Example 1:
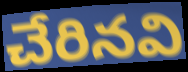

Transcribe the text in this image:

చేరినవి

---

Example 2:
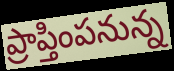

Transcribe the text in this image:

ప్రాప్తింపనున్న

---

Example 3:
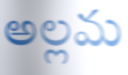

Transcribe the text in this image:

అల్లమ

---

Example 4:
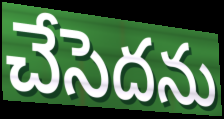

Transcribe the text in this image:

చేసెదను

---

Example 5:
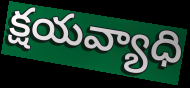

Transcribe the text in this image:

క్షయవ్యాధి